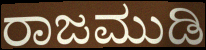
ರಾಜಮುಡಿ